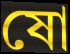
ষো